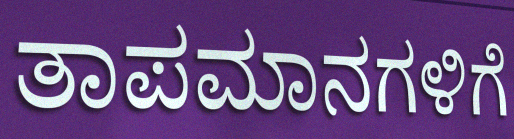
ತಾಪಮಾನಗಳಿಗೆ